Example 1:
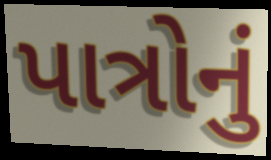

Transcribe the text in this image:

પાત્રોનું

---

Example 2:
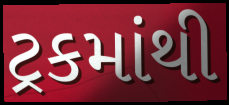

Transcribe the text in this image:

ટ્રકમાંથી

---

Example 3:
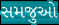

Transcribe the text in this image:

સમજુઓ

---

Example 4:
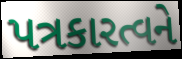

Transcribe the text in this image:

પત્રકારત્વને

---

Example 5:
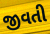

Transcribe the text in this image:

જીવતી